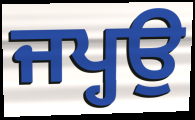
ਜਪ੍ਹਉ